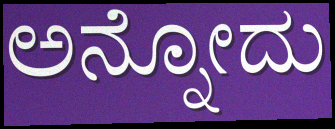
ಅನ್ನೋದು